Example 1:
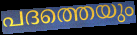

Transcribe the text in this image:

പദത്തെയും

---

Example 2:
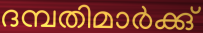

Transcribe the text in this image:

ദമ്പതിമാർക്കു്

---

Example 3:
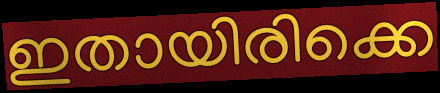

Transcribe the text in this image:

ഇതായിരിക്കെ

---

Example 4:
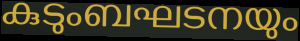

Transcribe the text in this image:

കുടുംബഘടനയും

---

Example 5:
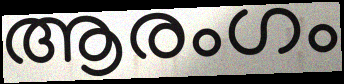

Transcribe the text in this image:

ആരംഗം